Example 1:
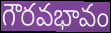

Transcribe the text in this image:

గౌరవభావం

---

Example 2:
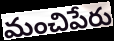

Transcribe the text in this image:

మంచిపేరు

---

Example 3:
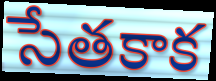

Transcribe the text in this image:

సేతకాక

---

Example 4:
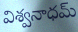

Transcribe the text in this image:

విశ్వనాధమ్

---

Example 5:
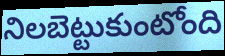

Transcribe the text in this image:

నిలబెట్టుకుంటోంది